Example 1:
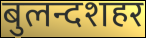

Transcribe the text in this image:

बुलन्दशहर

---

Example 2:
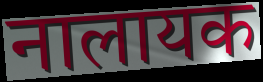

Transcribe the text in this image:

नालायक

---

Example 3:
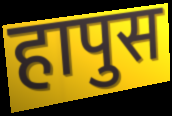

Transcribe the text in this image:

हापुस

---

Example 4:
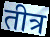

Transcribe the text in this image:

तीत्र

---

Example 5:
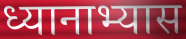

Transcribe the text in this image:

ध्यानाभ्यास